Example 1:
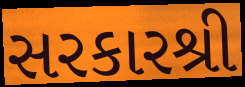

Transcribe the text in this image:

સરકારશ્રી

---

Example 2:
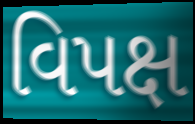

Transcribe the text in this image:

વિપક્ષ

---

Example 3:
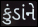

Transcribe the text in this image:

કુંડાંને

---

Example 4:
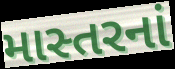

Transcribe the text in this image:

માસ્તરનાં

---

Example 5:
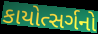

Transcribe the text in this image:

કાયોત્સર્ગનો